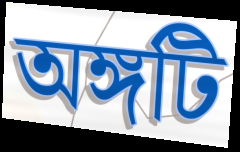
অঙ্গটি